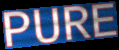
PURE